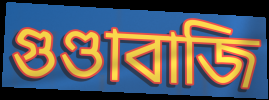
গুণ্ডাবাজি